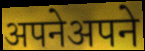
अपनेअपने